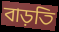
বাড়তি